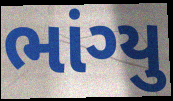
ભાંગ્યુ